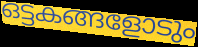
ഒട്ടകങ്ങളോടും